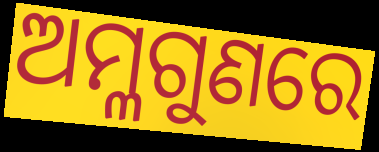
ଅମ୍ଳଗୁଣରେ